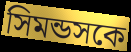
সিমন্ডসকে